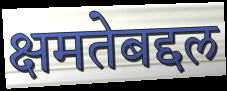
क्षमतेबद्दल